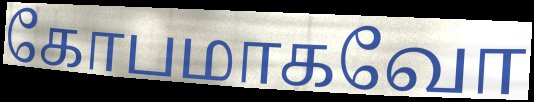
கோபமாகவோ